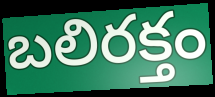
బలిరక్తం